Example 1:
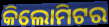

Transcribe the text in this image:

କିଲୋମିଟର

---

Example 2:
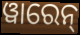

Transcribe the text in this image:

ୱାରେନ୍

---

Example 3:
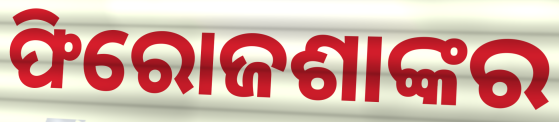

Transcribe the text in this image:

ଫିରୋଜଶାଙ୍କର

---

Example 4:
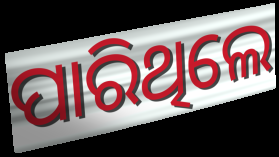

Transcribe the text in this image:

ପାରିଥିଲେ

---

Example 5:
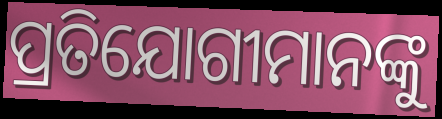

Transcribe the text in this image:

ପ୍ରତିଯୋଗୀମାନଙ୍କୁ